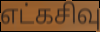
எட்கசிவு